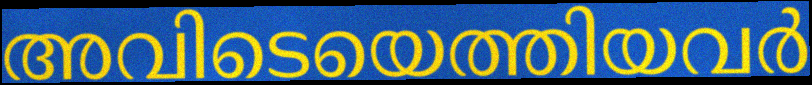
അവിടെയെത്തിയവർ